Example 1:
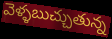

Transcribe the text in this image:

వెళ్ళబుచ్చుతున్న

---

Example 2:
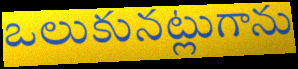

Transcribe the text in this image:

ఒలుకునట్లుగాను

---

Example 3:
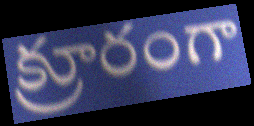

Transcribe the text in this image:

క్రూరంగా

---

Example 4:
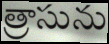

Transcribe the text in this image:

త్రాసును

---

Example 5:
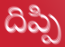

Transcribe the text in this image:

దిప్పి